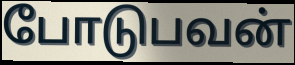
போடுபவன்